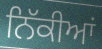
ਨਿੱਕੀਆਂ